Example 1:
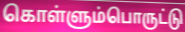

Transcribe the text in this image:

கொள்ளும்பொருட்டு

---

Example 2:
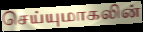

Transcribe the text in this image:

செய்யுமாகலின்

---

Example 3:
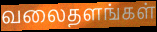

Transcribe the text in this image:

வலைதளங்கள்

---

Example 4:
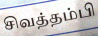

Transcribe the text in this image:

சிவத்தம்பி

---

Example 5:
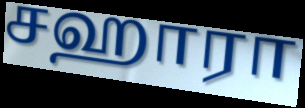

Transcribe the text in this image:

சஹாரா